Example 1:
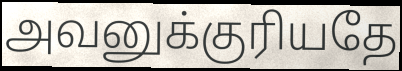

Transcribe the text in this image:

அவனுக்குரியதே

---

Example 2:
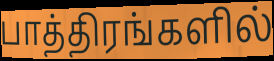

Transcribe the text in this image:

பாத்திரங்களில்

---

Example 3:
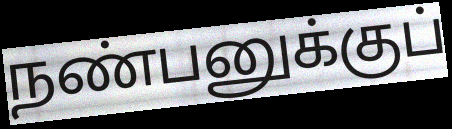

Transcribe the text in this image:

நண்பனுக்குப்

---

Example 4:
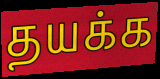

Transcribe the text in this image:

தயக்க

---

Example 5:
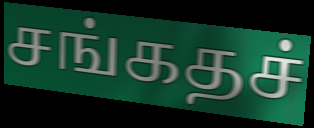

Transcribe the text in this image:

சங்கதச்